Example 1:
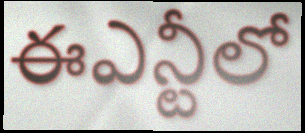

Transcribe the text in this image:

ఈఎన్టీలో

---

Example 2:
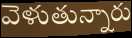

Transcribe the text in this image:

వెళుతున్నారు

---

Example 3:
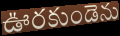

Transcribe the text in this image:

ఊరకుండెను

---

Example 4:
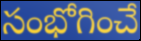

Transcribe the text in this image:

సంభోగించే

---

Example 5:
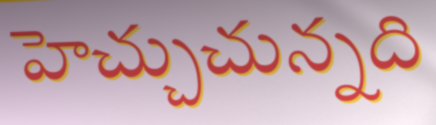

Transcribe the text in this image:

హెచ్చుచున్నది